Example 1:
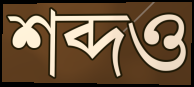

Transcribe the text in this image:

শব্দও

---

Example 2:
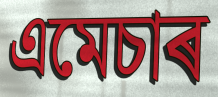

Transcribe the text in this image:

এমেচাৰ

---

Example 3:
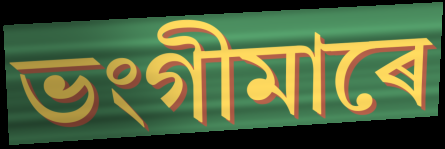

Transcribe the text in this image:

ভংগীমাৰে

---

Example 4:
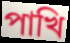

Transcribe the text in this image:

পাখি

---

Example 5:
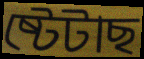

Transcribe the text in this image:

ষ্টেটাছ